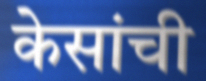
केसांची